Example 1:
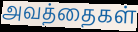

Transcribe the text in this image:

அவத்தைகள்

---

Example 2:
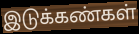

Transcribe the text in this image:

இடுக்கண்கள்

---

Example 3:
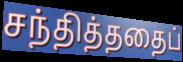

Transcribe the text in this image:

சந்தித்ததைப்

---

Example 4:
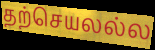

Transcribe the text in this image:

தற்செயலல்ல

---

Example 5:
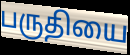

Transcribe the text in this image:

பருதியை